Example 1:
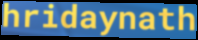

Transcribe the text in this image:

hridaynath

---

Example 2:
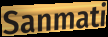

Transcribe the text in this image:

Sanmati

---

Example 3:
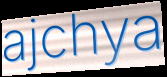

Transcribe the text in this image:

ajchya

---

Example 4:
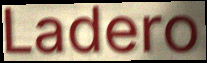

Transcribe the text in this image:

Ladero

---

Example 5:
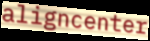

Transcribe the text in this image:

aligncenter